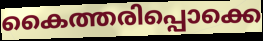
കൈത്തരിപ്പൊക്കെ